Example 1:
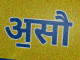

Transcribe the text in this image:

अ॒सौ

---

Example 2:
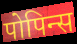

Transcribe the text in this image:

पोपिन्स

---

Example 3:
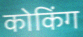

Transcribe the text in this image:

कोकिंग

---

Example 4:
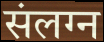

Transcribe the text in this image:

संलग्‍न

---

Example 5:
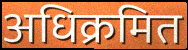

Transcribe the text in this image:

अधिक्रमित